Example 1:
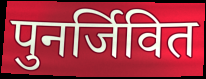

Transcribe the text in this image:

पुनर्जिवित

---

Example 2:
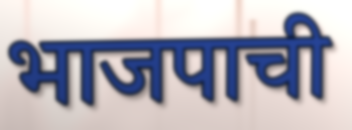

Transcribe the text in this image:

भाजपाची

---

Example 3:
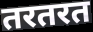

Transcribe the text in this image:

तरतरत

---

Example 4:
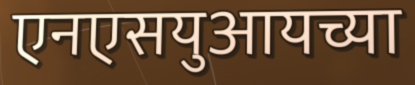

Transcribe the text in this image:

एनएसयुआयच्या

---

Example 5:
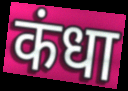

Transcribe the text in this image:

कंधा